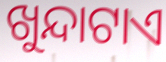
ଖୁନ୍ଦାଟାଏ